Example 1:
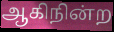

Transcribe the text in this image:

ஆகிநின்ற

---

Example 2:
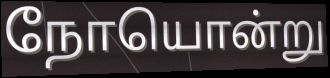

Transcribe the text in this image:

நோயொன்று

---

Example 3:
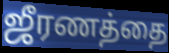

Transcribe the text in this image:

ஜீரணத்தை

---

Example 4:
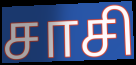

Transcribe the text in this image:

சாசி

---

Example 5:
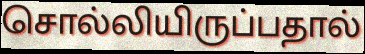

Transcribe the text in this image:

சொல்லியிருப்பதால்